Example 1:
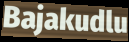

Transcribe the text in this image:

Bajakudlu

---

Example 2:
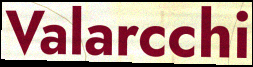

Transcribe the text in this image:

Valarcchi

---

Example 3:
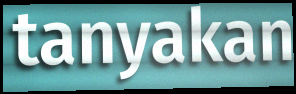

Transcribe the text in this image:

tanyakan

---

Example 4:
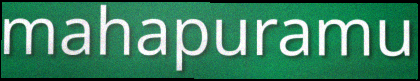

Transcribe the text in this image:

mahapuramu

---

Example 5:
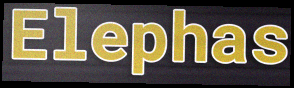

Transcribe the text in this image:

Elephas